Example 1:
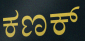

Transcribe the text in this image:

ಕಣಕ್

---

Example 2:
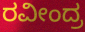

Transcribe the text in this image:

ರವೀಂದ್ರ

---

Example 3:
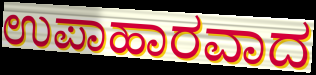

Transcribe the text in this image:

ಉಪಾಹಾರವಾದ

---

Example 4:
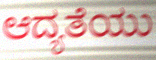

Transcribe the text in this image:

ಆದ್ಯತೆಯು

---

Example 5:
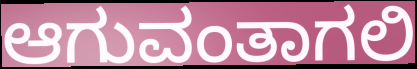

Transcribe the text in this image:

ಆಗುವಂತಾಗಲಿ